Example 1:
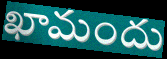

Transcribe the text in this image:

ఖామందు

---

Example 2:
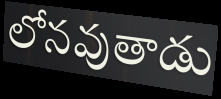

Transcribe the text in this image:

లోనవుతాడు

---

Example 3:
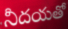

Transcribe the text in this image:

నీదయతో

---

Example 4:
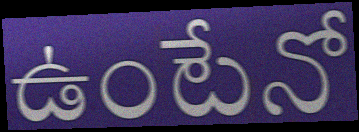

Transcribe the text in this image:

ఉంటేనో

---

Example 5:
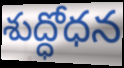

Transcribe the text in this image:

శుద్ధోధన